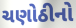
ચણોઠીનો